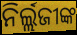
ନିର୍ଲ୍ଲଜୀଙ୍କ